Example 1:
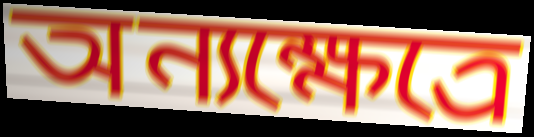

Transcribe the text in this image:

অন্যক্ষেত্রে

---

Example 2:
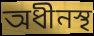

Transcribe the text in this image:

অধীনস্থ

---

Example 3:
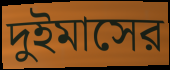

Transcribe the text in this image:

দুইমাসের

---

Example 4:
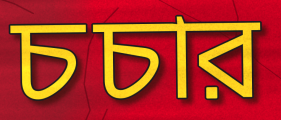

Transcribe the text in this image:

চচার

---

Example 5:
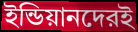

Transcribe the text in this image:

ইন্ডিয়ানদেরই